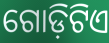
ଗୋଡ଼ିଟିଏ